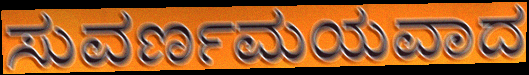
ಸುವರ್ಣಮಯವಾದ